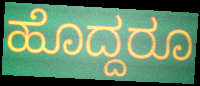
ಹೊದ್ದರೂ